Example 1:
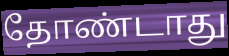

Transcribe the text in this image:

தோண்டாது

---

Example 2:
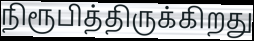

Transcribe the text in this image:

நிரூபித்திருக்கிறது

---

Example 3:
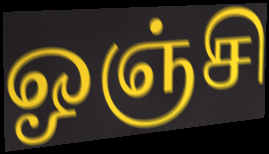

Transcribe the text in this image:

ஓஞ்சி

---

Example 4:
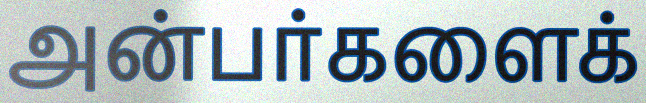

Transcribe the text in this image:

அன்பர்களைக்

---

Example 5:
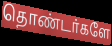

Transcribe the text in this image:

தொண்டர்களே